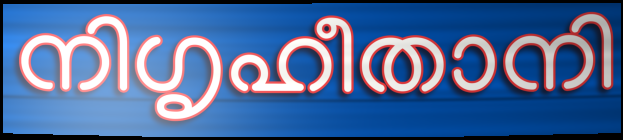
നിഗൃഹീതാനി